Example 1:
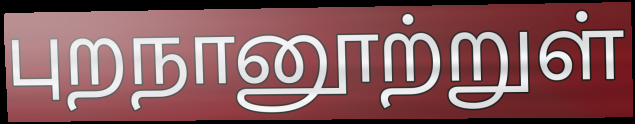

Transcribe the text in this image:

புறநானூற்றுள்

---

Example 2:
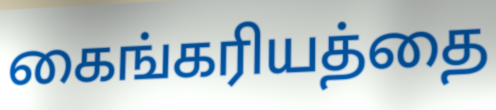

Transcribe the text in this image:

கைங்கரியத்தை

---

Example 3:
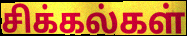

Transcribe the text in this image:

சிக்கல்கள்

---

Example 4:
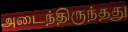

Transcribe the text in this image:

அடைந்திருந்தது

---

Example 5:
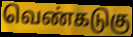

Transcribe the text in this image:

வெண்கடுகு